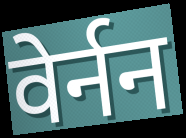
वेर्नन